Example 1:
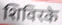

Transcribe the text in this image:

शिविरके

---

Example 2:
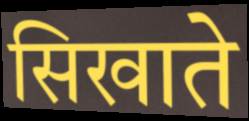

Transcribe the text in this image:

सिखाते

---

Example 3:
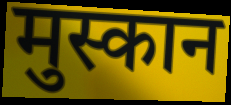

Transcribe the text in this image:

मुस्कान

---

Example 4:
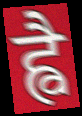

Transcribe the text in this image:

ह्वै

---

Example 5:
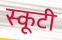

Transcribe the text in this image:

स्कूटी